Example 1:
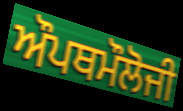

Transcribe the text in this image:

ਔਪਥਮੌਲੋਜੀ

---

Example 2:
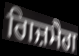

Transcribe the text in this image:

ਗਿਜ਼ਮੈਗ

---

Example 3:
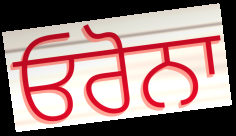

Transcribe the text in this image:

ਓਰੋਨਾ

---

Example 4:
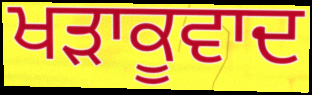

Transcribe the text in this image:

ਖੜਾਕੂਵਾਦ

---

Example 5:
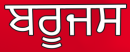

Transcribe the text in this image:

ਬਰੂਜਸ